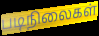
படிநிலைகள்